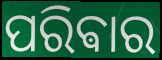
ପରିଵାର